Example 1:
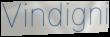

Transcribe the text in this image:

Vindigni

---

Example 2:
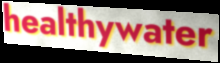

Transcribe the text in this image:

healthywater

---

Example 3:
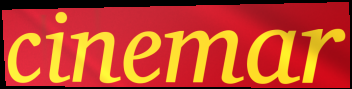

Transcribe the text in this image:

cinemar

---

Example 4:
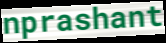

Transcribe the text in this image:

nprashant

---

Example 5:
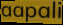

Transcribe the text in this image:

aapali